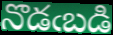
నొడఁబడి